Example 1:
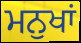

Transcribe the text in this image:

ਮਨੁਖਾਂ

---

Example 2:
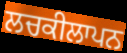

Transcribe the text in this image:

ਲਚਕੀਲਾਪਨ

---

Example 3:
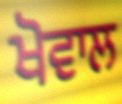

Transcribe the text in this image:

ਖੋਵਾਲ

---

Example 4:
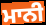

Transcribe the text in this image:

ਮਾਨੀ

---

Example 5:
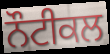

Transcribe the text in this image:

ਨੌਟੀਕਲ